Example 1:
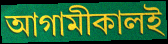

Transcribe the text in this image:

আগামীকালই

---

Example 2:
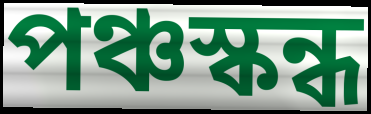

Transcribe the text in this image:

পঞ্চস্কন্ধ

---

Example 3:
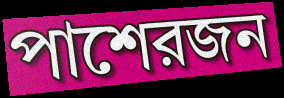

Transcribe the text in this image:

পাশেরজন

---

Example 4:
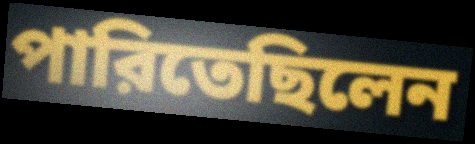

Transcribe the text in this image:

পারিতেছিলেন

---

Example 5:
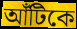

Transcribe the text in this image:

আঁটিকে